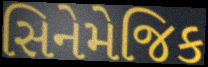
સિનેમેજિક